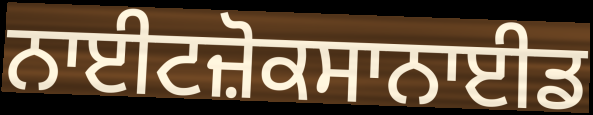
ਨਾਈਟਜ਼ੋਕਸਾਨਾਈਡ